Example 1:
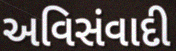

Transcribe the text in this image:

અવિસંવાદી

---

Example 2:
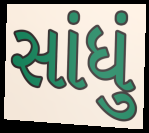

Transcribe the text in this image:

સાંધું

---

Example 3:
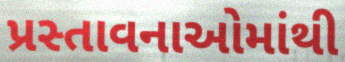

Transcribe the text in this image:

પ્રસ્તાવનાઓમાંથી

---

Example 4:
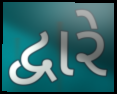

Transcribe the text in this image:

દ્વારે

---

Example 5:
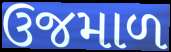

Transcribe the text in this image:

ઉજમાળ